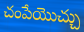
చంపేయొచ్చు